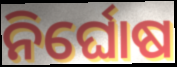
ନିର୍ଘୋଷ